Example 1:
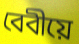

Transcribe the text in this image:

বেবীয়ে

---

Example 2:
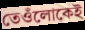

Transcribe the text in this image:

তেওঁলোকেই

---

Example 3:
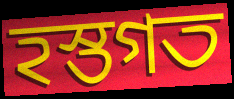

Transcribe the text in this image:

হস্তগত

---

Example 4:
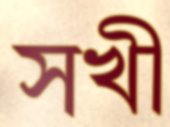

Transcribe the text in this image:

সখী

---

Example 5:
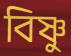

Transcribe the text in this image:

বিষ্ণু